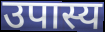
उपास्य